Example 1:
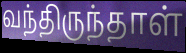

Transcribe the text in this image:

வந்திருந்தாள்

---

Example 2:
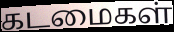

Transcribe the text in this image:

கடமைகள்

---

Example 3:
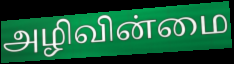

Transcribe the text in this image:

அழிவின்மை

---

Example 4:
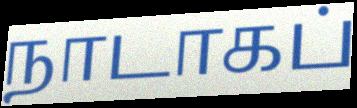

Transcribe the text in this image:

நாடாகப்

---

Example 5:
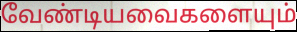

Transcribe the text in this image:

வேண்டியவைகளையும்